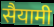
सैयामी